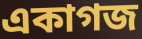
একাগজ